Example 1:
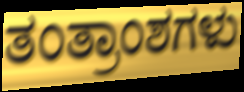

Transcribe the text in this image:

ತಂತ್ರಾಂಶಗಳು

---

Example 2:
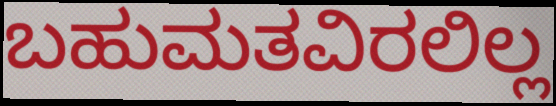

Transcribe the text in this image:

ಬಹುಮತವಿರಲಿಲ್ಲ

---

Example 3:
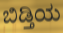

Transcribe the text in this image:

ಬಿಡ್ತಿಯ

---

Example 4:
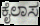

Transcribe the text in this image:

ಕೈಲಾಸ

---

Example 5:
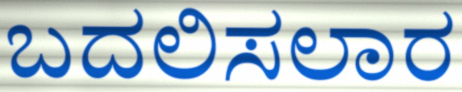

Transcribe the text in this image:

ಬದಲಿಸಲಾರ